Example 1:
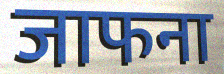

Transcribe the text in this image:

जाफना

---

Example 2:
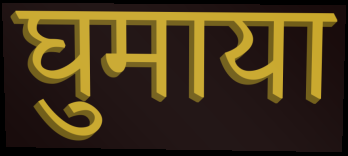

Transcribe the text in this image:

घुमाया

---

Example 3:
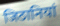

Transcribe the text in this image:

जिठानियां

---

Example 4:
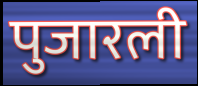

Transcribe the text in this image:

पुजारली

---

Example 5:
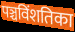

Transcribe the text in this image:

पञ्चविंशतिका